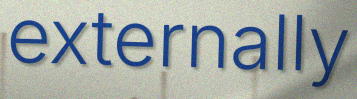
externally